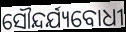
ସୌନ୍ଦର୍ଯ୍ୟବୋଧୀ